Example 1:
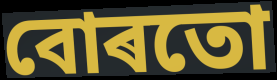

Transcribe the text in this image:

বোৰতো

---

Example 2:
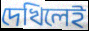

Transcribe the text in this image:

দেখিলেই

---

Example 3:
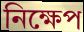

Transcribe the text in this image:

নিক্ষেপ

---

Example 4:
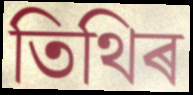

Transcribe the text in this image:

তিথিৰ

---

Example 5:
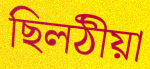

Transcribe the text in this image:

ছিলঠীয়া